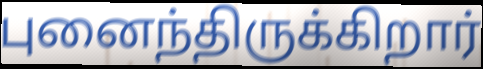
புனைந்திருக்கிறார்